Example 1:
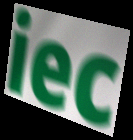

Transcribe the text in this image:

iec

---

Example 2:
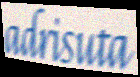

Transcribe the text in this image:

adrisuta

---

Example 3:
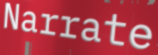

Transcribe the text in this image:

Narrate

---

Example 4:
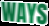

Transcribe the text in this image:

WAYS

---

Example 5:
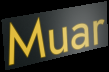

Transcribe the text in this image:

Muar